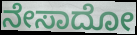
ನೇಸಾದೋ